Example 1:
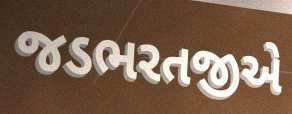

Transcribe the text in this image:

જડભરતજીએ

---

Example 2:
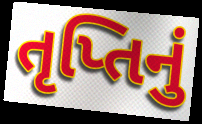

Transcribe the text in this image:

તૃપ્તિનું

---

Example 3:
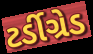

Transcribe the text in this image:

ટર્ડીગ્રેડ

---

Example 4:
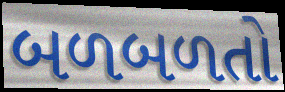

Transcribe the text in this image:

બળબળતો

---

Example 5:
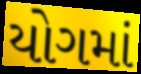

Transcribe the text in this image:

યોગમાં